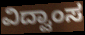
ವಿದ್ವಾಂಸ